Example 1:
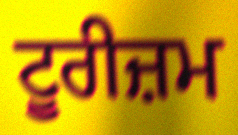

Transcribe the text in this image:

ਟੂਰੀਜ਼ਮ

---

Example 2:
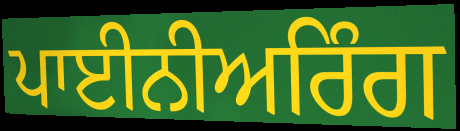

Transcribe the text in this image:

ਪਾਈਨੀਅਰਿੰਗ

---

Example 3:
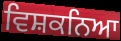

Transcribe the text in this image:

ਵਿਸ਼ਕਨਿਆ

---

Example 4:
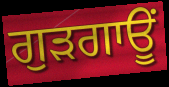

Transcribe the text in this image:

ਗੁੜਗਾਊਂ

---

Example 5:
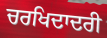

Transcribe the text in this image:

ਚਰਖਿਦਾਦਰੀ